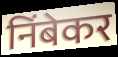
निंबेकर